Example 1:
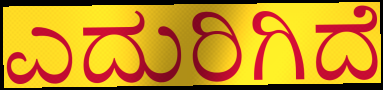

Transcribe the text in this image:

ಎದುರಿಗಿದೆ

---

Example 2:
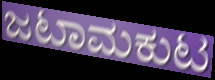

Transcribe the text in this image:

ಜಟಾಮಕುಟ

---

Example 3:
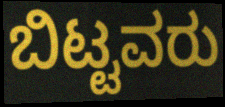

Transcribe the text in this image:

ಬಿಟ್ಟವರು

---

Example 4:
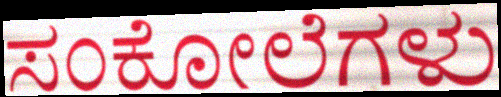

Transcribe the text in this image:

ಸಂಕೋಲೆಗಳು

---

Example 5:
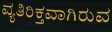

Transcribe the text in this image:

ವ್ಯತಿರಿಕ್ತವಾಗಿರುವ